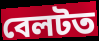
বেলটত